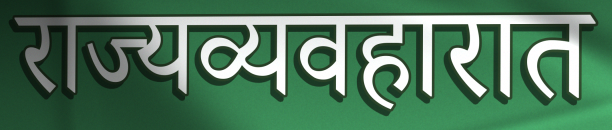
राज्यव्यवहारात